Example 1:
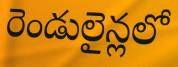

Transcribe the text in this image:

రెండులైన్లలో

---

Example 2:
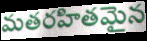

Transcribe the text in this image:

మతరహితమైన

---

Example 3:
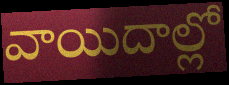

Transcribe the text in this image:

వాయిదాల్లో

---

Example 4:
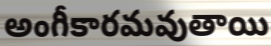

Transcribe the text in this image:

అంగీకారమవుతాయి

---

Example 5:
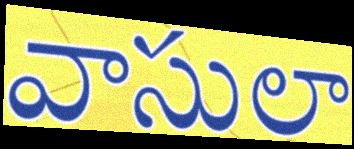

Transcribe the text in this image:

వాసులా